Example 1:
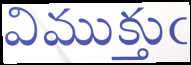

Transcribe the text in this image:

విముక్తుఁ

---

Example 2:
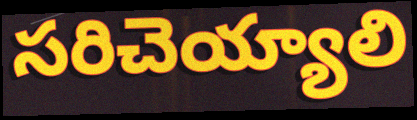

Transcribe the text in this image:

సరిచెయ్యాలి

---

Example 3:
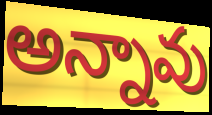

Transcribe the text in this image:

అన్నావు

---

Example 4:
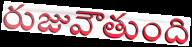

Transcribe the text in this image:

రుజువౌతుంది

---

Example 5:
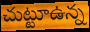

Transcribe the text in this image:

చుట్టూఉన్న